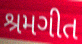
શ્રમગીત